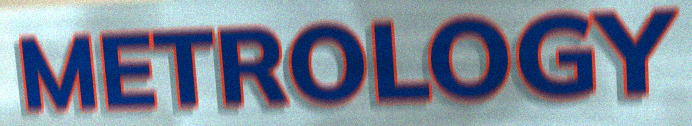
METROLOGY